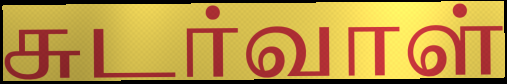
சுடர்வாள்